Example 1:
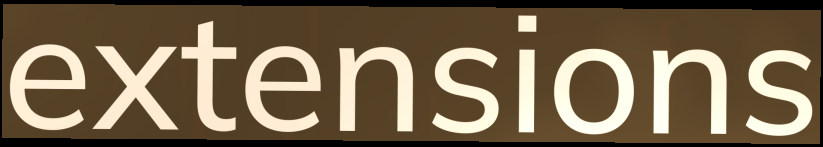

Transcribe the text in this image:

extensions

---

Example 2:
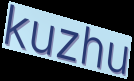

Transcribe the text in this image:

kuzhu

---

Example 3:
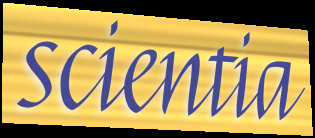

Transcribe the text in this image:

scientia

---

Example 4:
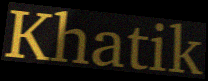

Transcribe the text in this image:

Khatik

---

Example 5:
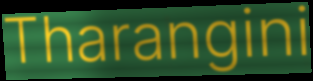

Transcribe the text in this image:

Tharangini